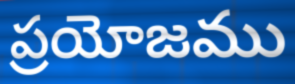
ప్రయోజము